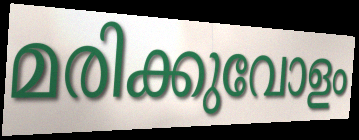
മരിക്കുവോളം